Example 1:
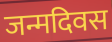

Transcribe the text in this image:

जन्मदिवस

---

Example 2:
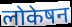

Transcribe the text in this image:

लोकेषन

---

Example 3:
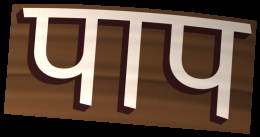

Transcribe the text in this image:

पाप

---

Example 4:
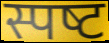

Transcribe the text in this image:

स्‍पष्‍ट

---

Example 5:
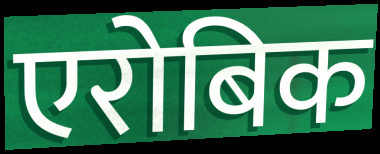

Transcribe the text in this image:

एरोबिक